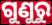
ଗୁଣୁରୁ